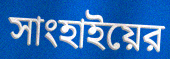
সাংহাইয়ের